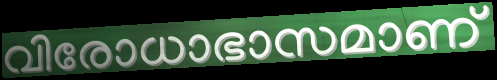
വിരോധാഭാസമാണ്